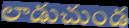
లాడుచుండ